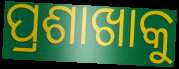
ପ୍ରଶାଖାକୁ